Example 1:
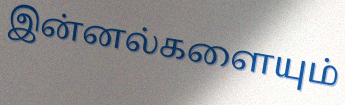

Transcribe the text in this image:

இன்னல்களையும்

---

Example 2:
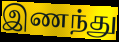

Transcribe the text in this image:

இணந்து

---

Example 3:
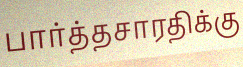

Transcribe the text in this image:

பார்த்தசாரதிக்கு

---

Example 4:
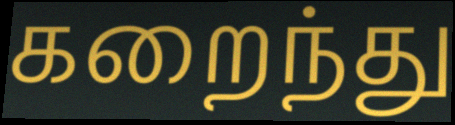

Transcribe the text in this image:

கறைந்து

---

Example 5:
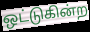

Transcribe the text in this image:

ஒட்டுகின்ற